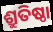
ଶ୍ରୁତିଷ୍ଠା